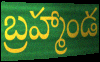
బ్రహ్మాండ